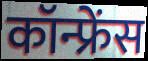
कॉन्फ्रेंस